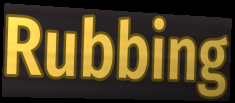
Rubbing